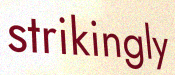
strikingly